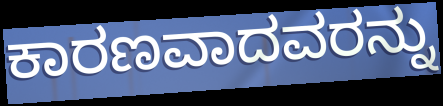
ಕಾರಣವಾದವರನ್ನು